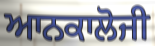
ਆਨਕਾਲੋਜੀ